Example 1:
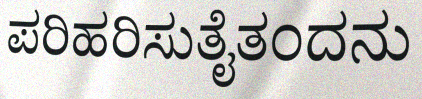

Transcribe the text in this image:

ಪರಿಹರಿಸುತೈತಂದನು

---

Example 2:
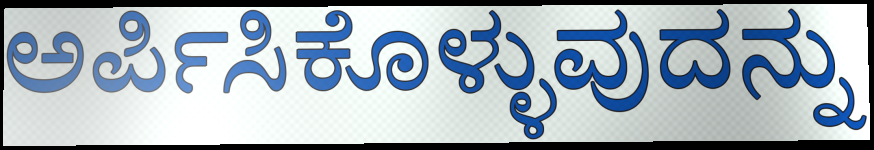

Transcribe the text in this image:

ಅರ್ಪಿಸಿಕೊಳ್ಳುವುದನ್ನು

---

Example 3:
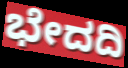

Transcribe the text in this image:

ಭೇದದಿ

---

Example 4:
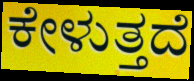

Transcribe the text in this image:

ಕೇಳುತ್ತದೆ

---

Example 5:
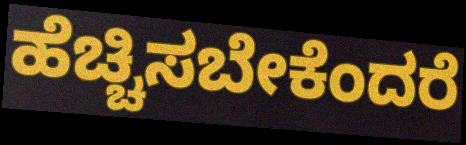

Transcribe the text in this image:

ಹೆಚ್ಚಿಸಬೇಕೆಂದರೆ